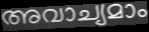
അവാച്യമാം